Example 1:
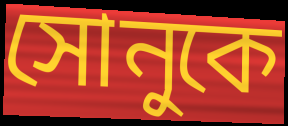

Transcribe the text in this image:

সোনুকে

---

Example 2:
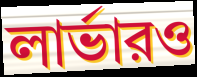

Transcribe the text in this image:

লার্ভারও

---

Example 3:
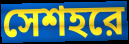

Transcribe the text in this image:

সেশহরে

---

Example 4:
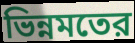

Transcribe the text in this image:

ভিন্নমতের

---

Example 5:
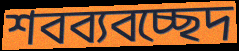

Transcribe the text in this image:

শবব্যবচ্ছেদ